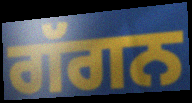
ਗੱਗਨ